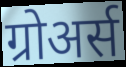
ग्रोअर्स